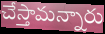
చేస్తామన్నారు